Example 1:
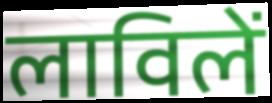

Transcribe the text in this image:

लाविलें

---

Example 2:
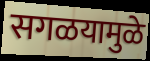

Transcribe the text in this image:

सगळयामुळे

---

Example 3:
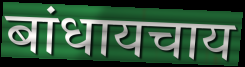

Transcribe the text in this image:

बांधायचाय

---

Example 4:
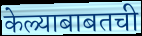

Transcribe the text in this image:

केल्याबाबतची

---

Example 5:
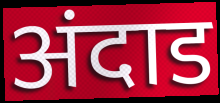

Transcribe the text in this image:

अंदाड